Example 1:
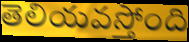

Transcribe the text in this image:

తెలియవస్తోంది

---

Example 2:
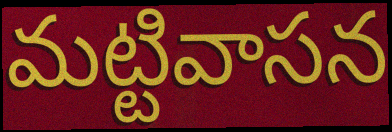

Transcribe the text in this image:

మట్టివాసన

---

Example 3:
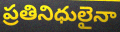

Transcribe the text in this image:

ప్రతినిధులైనా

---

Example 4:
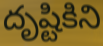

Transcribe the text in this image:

దృష్టికిని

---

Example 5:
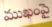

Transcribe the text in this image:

ముఖంపై